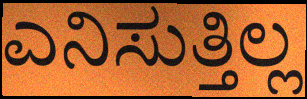
ಎನಿಸುತ್ತಿಲ್ಲ